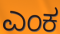
ಎಂಕ